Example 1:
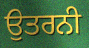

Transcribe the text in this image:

ਉਤਰਨੀ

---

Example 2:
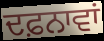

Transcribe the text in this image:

ਦਫ਼ਨਾਵਾਂ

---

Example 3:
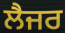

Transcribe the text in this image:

ਲੈਜਰ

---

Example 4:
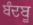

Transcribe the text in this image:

ਬੰਦਬੂ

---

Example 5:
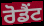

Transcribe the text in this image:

ਰੋਡੈਂਟ